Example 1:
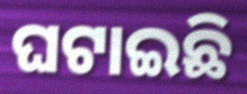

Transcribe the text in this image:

ଘଟାଇଛି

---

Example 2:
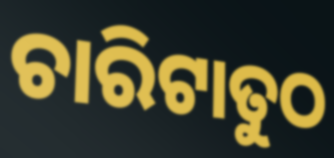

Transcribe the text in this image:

ଚାରିଟାତୁଠ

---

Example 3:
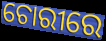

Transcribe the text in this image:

ଚୋରୀରେ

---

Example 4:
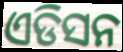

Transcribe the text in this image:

ଏଡିସନ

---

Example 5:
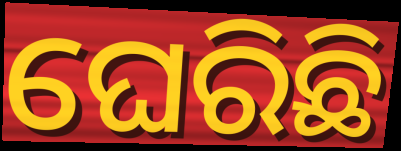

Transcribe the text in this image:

ଘେରିଛି